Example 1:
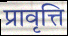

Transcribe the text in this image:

प्रावृत्ति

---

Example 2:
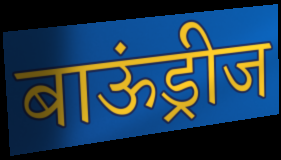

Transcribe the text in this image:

बाऊंड्रीज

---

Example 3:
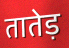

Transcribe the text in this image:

तातेड़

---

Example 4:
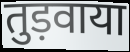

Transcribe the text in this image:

तुड़वाया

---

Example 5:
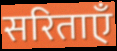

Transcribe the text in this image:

सरिताएँ